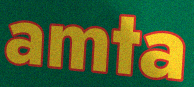
amta